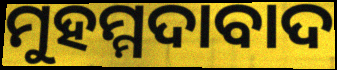
ମୁହମ୍ମଦାବାଦ